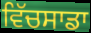
ਵਿੱਚਸਾਡਾ